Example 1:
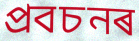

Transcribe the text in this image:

প্ৰবচনৰ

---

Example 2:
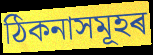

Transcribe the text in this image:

ঠিকনাসমূহৰ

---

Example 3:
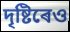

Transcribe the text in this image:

দৃষ্টিৰেও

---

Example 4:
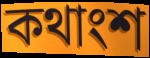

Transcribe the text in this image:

কথাংশ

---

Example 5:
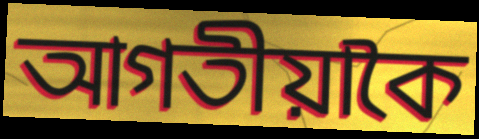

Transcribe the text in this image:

আগতীয়াকৈ